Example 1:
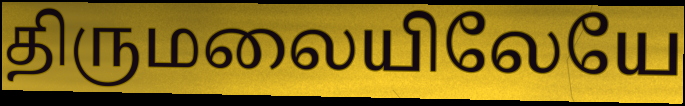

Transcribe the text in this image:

திருமலையிலேயே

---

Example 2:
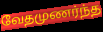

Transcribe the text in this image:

வேதமுணர்ந்த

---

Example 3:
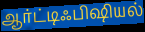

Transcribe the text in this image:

ஆர்ட்டிஃபிஷியல்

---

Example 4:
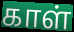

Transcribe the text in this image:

காள்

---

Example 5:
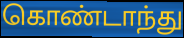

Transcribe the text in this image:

கொண்டாந்து